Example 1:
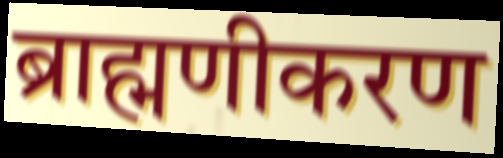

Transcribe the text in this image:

ब्राह्मणीकरण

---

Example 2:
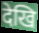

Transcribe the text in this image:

देखि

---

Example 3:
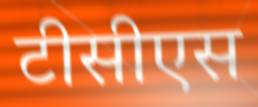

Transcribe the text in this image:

टीसीएस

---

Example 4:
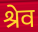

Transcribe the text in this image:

श्रेव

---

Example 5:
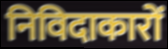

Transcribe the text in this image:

निविदाकारों